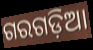
ଗରଗଡ଼ିଆ